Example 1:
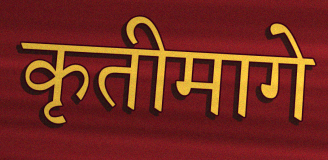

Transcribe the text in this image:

कृतीमागे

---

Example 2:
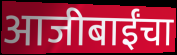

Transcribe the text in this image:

आजीबाईंचा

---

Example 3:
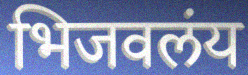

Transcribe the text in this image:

भिजवलंय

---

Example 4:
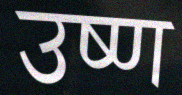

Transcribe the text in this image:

उष्ण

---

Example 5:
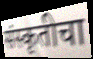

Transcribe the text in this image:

संस्कृतीचा